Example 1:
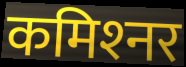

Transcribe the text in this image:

कमिश्‍नर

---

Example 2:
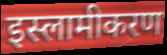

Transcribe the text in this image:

इस्लामीकरण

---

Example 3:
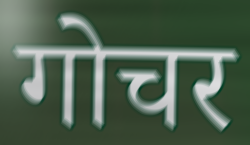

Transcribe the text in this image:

गोचर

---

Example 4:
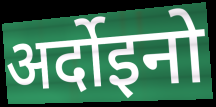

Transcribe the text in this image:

अर्दोइनो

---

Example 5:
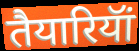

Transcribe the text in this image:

तैयारियॉं